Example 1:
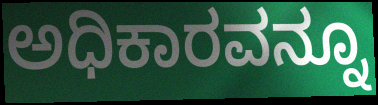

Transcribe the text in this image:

ಅಧಿಕಾರವನ್ನೂ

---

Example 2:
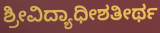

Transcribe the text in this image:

ಶ್ರೀವಿದ್ಯಾಧೀಶತೀರ್ಥ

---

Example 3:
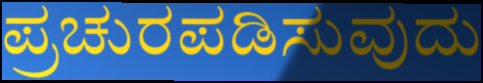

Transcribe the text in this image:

ಪ್ರಚುರಪಡಿಸುವುದು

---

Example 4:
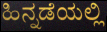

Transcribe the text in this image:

ಹಿನ್ನಡೆಯಲ್ಲಿ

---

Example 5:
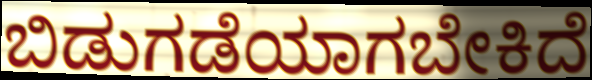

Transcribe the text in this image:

ಬಿಡುಗಡೆಯಾಗಬೇಕಿದೆ